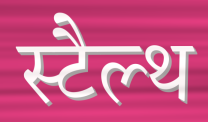
स्टैल्थ